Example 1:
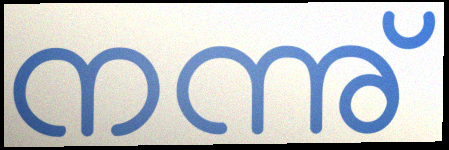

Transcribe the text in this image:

നന്നു്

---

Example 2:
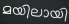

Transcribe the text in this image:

മയിലായി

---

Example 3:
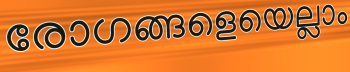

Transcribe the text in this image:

രോഗങ്ങളെയെല്ലാം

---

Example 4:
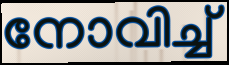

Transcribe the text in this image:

നോവിച്ച്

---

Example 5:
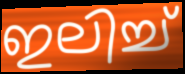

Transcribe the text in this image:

ഇലിച്ച്